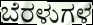
ಬೆರಳುಗಳ